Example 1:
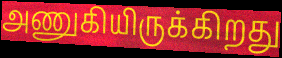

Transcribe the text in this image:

அணுகியிருக்கிறது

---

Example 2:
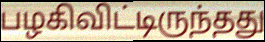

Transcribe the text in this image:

பழகிவிட்டிருந்தது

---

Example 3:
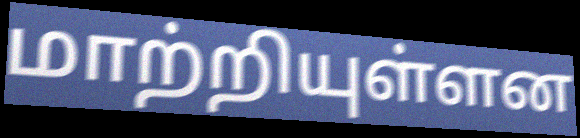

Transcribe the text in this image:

மாற்றியுள்ளன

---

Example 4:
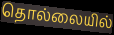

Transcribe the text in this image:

தொல்லையில்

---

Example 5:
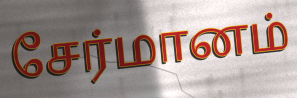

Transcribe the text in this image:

சேர்மானம்